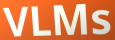
VLMs